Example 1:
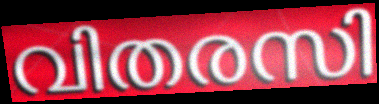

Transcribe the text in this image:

വിതരസി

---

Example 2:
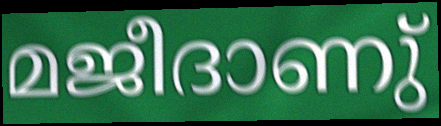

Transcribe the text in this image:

മജീദാണു്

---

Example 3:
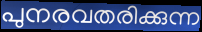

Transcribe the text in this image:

പുനരവതരിക്കുന്ന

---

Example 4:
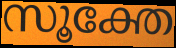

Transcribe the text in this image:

സൂക്തേ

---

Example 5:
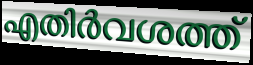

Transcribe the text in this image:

എതിർവശത്ത്